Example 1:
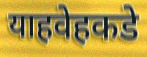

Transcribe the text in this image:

याहवेहकडे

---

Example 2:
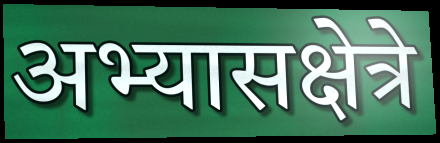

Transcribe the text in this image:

अभ्यासक्षेत्रे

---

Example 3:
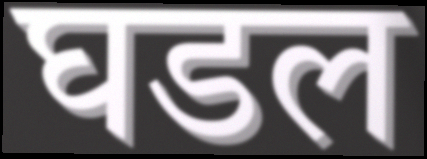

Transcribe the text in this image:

घडल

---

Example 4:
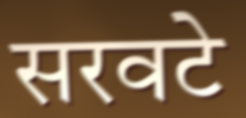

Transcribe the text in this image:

सरवटे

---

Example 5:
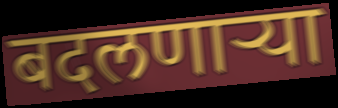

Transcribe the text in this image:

बदलणार्‍या